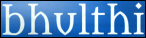
bhulthi